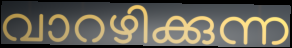
വാറഴിക്കുന്ന